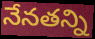
నేనతన్ని